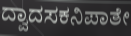
ದ್ವಾದಸಕನಿಪಾತೇ